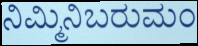
ನಿಮ್ಮಿನಿಬರುಮಂ